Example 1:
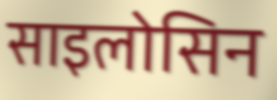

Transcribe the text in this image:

साइलोसिन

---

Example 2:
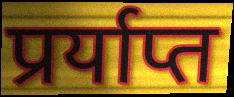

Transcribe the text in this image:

प्रर्याप्त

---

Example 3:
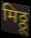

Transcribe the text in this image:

मिठ्ठू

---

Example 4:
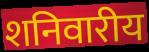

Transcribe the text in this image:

शनिवारीय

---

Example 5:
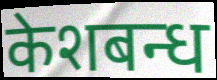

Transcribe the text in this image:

केशबन्ध